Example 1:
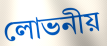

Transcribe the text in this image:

লোভনীয়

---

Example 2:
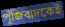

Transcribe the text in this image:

পুঁজিবাদকেই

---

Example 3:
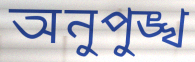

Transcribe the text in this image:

অনুপুঙ্খ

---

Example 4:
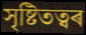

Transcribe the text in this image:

সৃষ্টিতত্বৰ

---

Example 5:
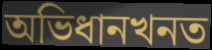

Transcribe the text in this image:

অভিধানখনত